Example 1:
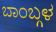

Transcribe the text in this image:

ಬಾಂಬ್ಗಳ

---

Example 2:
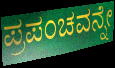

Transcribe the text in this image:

ಪ್ರಪಂಚವನ್ನೇ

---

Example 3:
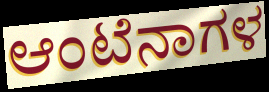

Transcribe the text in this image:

ಆಂಟೆನಾಗಳ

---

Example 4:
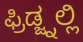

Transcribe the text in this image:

ಫ್ರಿಡ್ಜ್ನಲ್ಲಿ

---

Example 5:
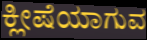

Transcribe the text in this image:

ಕ್ಲೀಷೆಯಾಗುವ